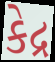
કેદ્ર